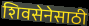
शिवसेनेसाठी